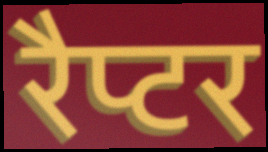
रैप्टर